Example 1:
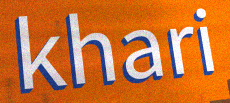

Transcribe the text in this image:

khari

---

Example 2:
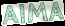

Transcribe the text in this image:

AIMA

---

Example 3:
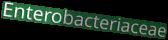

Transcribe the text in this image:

Enterobacteriaceae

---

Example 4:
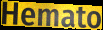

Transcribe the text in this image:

Hemato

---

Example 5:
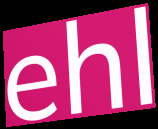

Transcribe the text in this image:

ehl